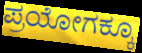
ಪ್ರಯೋಗಕ್ಕೂ